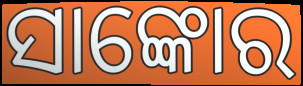
ସାଙ୍କୋର